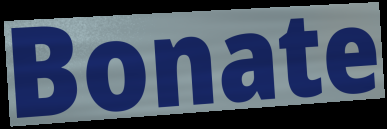
Bonate